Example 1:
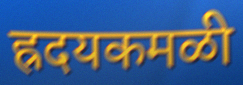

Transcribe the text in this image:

ह्रदयकमळी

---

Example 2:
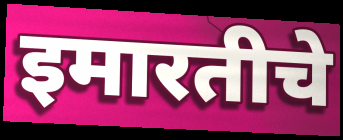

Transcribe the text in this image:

इमारतीचे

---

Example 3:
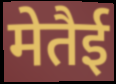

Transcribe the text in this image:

मेतैई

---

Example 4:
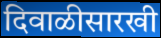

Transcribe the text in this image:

दिवाळीसारखी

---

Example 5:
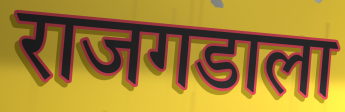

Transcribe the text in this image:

राजगडाला